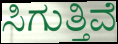
ಸಿಗುತ್ತಿವೆ